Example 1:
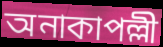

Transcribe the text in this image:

অনাকাপল্লী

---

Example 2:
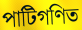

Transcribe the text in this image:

পাটিগণিত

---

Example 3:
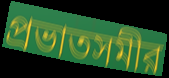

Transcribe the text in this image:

প্রভাতসমীর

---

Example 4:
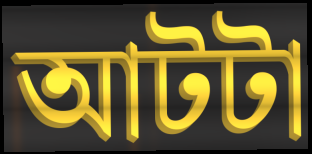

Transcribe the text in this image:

আটটা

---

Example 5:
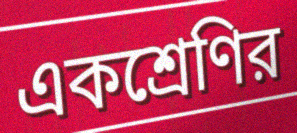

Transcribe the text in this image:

একশ্রেণির